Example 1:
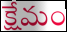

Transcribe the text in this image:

క్షేమం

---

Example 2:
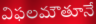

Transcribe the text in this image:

విఫలమౌతూనే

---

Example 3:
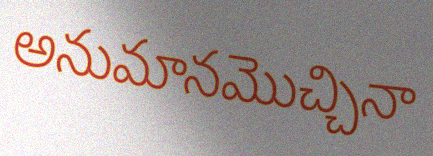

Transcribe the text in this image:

అనుమానమొచ్చినా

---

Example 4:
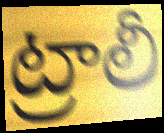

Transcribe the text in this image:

ట్రాలీ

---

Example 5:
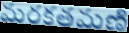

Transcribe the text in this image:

మరకతమణి